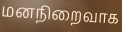
மனநிறைவாக